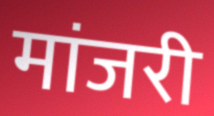
मांजरी